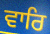
ਵਾਰਿ